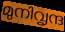
മുനിവൃന്ദ